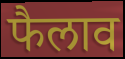
फैलाव